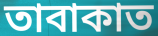
তাবাকাত